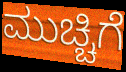
ಮುಚ್ಚಿಗೆ